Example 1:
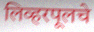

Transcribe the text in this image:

लिव्हरपूलचे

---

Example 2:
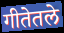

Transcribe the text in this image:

गीतेतले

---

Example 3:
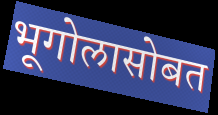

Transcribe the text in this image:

भूगोलासोबत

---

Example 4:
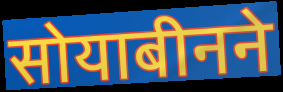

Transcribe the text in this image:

सोयाबीनने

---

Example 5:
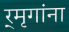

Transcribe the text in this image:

र्मृगांना